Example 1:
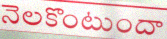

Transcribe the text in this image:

నెలకొంటుందా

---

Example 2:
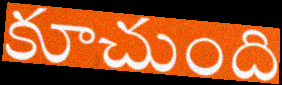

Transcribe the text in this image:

కూచుంది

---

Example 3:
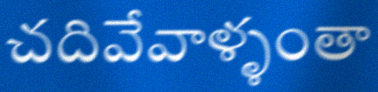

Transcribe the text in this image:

చదివేవాళ్ళంతా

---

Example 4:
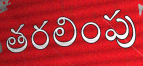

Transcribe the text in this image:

తరలింపు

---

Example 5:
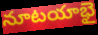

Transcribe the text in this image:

నూటయాభై